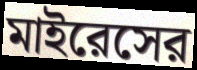
মাইরেসের